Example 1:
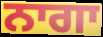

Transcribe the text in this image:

ਨਾਗਾ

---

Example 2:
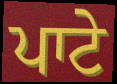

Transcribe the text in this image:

ਪਾਟੇ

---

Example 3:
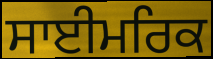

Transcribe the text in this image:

ਸਾਈਮਰਿਕ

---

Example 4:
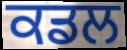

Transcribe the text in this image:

ਕਡਲ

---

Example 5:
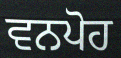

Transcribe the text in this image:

ਵਨਪੋਹ